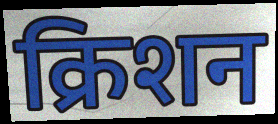
क्रिशन